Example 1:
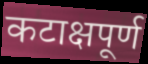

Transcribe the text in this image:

कटाक्षपूर्ण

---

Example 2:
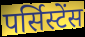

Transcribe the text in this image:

पर्सिस्टेंस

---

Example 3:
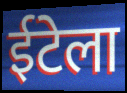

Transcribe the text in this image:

ईटेला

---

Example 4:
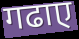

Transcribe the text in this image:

गढाए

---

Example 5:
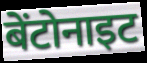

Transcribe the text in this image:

बेंटोनाइट